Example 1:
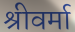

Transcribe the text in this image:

श्रीवर्मा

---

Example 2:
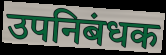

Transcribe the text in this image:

उपनिबंधक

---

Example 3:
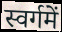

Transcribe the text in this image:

स्वर्गमें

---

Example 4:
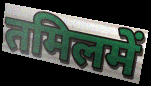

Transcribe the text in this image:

तमिलमें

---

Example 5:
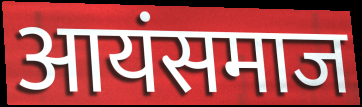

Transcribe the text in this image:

आयंसमाज